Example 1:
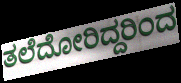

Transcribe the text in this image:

ತಲೆದೋರಿದ್ದರಿಂದ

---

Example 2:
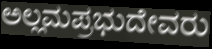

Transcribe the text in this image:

ಅಲ್ಲಮಪ್ರಭುದೇವರು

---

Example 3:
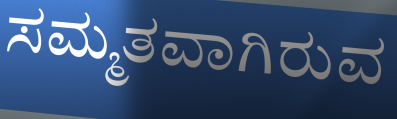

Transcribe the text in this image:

ಸಮ್ಮತವಾಗಿರುವ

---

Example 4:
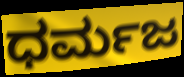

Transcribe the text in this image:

ಧರ್ಮಜ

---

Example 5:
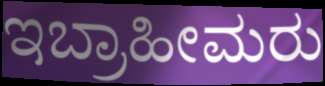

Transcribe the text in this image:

ಇಬ್ರಾಹೀಮರು